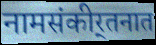
नामसंकीर्तनात